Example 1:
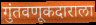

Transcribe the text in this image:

गुंतवणूकदाराला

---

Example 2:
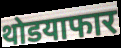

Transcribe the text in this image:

थोडयाफार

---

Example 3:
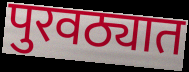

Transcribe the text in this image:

पुरवठ्यात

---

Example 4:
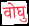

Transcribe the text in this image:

वोघु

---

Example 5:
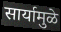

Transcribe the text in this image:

सार्यामुळे